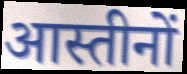
आस्तीनों